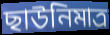
ছাউনিমাত্র